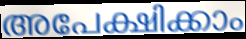
അപേക്ഷിക്കാം